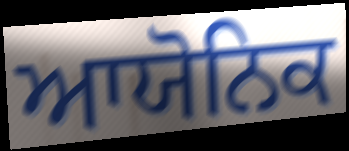
ਆਯੋਨਿਕ